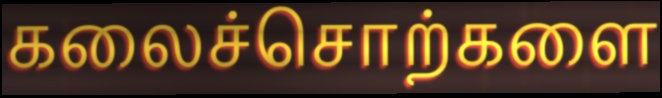
கலைச்சொற்களை